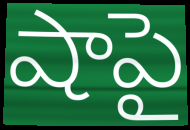
షాపై